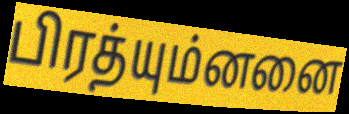
பிரத்யும்னனை